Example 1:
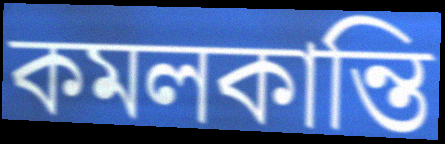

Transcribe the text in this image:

কমলকান্তি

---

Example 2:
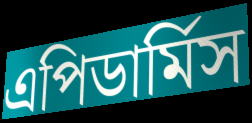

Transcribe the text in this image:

এপিডার্মিস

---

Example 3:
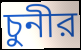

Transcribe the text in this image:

চুনীর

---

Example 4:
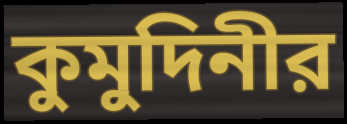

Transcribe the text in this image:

কুমুদিনীর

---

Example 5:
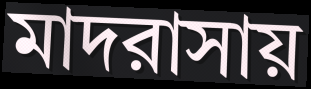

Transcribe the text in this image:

মাদরাসায়